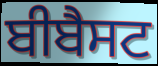
ਬੀਬੈਸਟ